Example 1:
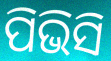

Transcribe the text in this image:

ପିଭିସି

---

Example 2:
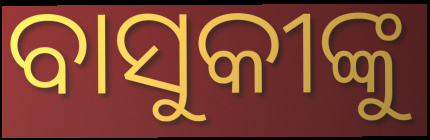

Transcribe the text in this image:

ବାସୁକୀଙ୍କୁ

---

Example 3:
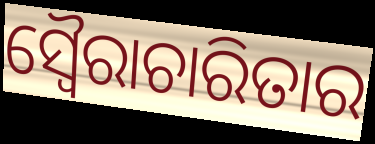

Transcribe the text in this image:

ସ୍ୱୈରାଚାରିତାର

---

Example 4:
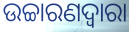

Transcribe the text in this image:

ଉଚ୍ଚାରଣଦ୍ଵାରା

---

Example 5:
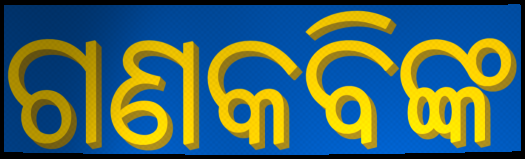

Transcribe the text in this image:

ଗଣକବିଙ୍କ